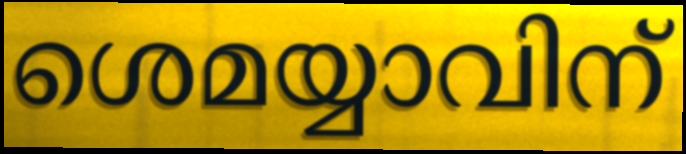
ശെമയ്യാവിന്